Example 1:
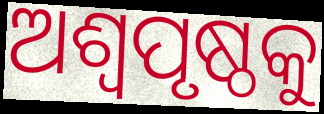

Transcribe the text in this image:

ଅଶ୍ୱପୃଷ୍ଠକୁ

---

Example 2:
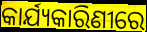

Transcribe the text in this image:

କାର୍ଯ୍ୟକାରିଣୀରେ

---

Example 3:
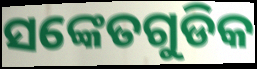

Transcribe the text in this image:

ସଙ୍କେତଗୁଡିକ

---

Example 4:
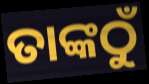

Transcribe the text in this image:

ତାଙ୍କଠୁଁ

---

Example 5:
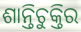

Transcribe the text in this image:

ଶାନ୍ତିଚୁକ୍ତିର